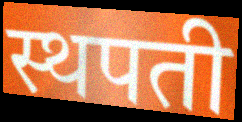
स्थपती